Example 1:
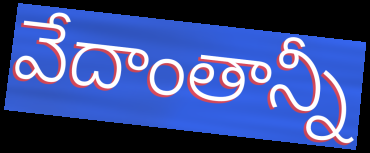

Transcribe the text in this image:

వేదాంతాన్నీ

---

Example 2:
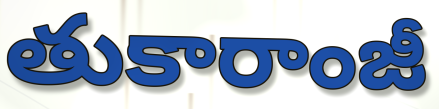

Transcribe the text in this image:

తుకారాంజీ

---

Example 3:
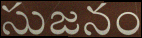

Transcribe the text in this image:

సుజనం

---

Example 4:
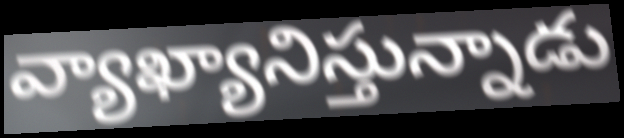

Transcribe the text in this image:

వ్యాఖ్యానిస్తున్నాడు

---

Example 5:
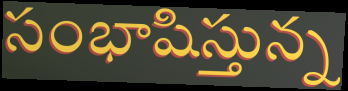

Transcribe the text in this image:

సంభాషిస్తున్న